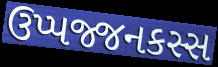
ઉપ્પજ્જનકસ્સ